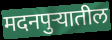
मदनपुऱ्यातील